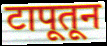
टापूतून